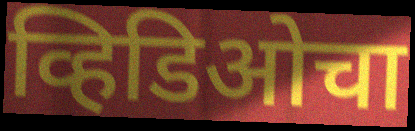
व्हिडिओचा